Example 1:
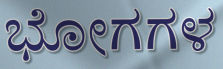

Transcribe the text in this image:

ಭೋಗಗಳ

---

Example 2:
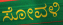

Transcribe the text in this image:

ಸೋವಳಿ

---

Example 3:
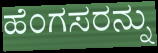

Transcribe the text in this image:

ಹೆಂಗಸರನ್ನು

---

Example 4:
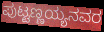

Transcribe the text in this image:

ಪುಟ್ಟಣ್ಣಯ್ಯನವರ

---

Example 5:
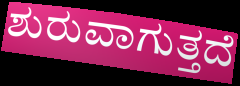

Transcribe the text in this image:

ಶುರುವಾಗುತ್ತದೆ